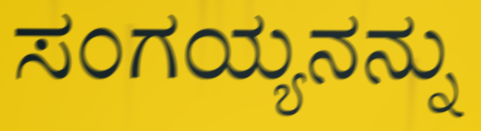
ಸಂಗಯ್ಯನನ್ನು